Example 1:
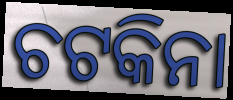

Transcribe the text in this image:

ଚଟକିନା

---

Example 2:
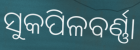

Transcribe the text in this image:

ସୁକପିଳବର୍ଣ୍ଣା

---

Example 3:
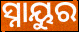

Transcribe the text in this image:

ସ୍ନାୟୁର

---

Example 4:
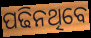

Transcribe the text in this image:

ପଢିନଥିବେ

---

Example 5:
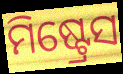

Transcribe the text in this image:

ମିଷ୍ଟ୍ରେସ